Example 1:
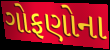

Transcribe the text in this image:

ગોફણોના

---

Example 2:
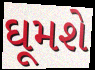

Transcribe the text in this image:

ઘૂમશે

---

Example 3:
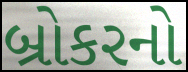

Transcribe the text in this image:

બ્રોકરનો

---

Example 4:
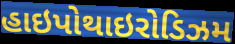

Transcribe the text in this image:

હાઇપોથાઇરોડિઝમ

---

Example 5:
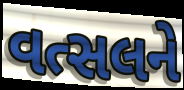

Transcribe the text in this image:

વત્સલને